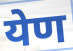
येण